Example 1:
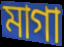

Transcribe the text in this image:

মাগা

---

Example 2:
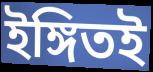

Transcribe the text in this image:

ইঙ্গিতই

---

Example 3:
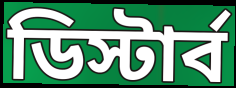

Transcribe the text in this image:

ডিস্টার্ব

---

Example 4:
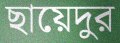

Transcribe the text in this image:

ছায়েদুর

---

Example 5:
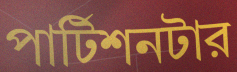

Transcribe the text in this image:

পার্টিশনটার